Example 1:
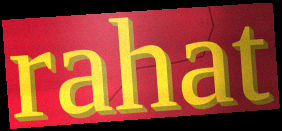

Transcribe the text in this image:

rahat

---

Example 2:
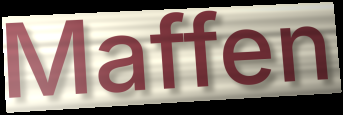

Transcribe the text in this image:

Maffen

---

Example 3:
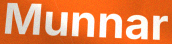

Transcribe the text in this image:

Munnar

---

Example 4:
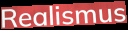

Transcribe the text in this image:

Realismus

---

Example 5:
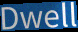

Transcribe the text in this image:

Dwell